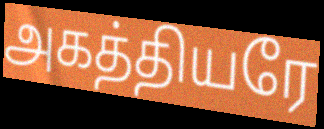
அகத்தியரே